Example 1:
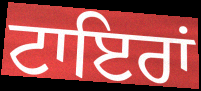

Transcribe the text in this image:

ਟਾਇਰਾਂ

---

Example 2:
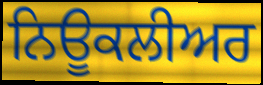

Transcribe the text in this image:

ਨਿਊਕਲੀਅਰ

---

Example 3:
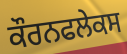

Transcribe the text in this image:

ਕੌਰਨਫਲੇਕਸ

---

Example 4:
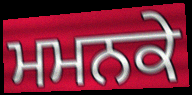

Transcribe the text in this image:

ਮਮਨਕੇ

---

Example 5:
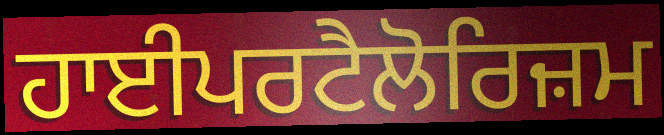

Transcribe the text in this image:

ਹਾਈਪਰਟੈਲੋਰਿਜ਼ਮ